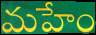
మహేం